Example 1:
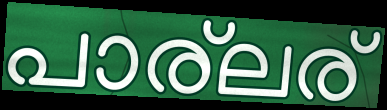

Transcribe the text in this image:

പാര്ലര്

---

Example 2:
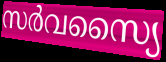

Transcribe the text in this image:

സർവസ്യൈ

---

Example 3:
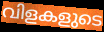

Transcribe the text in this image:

വിളകളുടെ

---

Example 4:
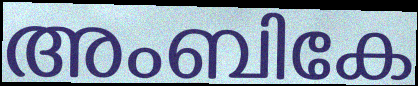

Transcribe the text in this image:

അംബികേ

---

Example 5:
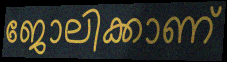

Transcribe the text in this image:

ജോലിക്കാണ്